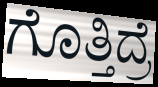
ಗೊತ್ತಿದ್ರೆ